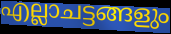
എല്ലാചട്ടങ്ങളും